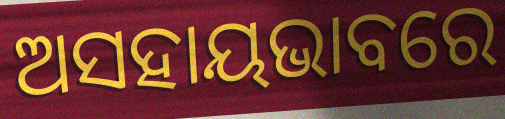
ଅସହାୟଭାବରେ